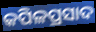
କପିଳପ୍ରସାଦ